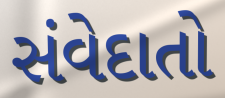
સંવેદાતો